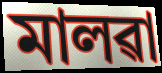
মালৱা